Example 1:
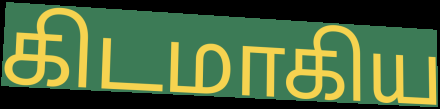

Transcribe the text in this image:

கிடமாகிய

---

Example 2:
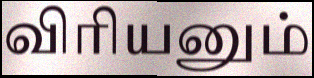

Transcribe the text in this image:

விரியனும்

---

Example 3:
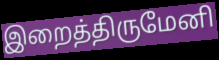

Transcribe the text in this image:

இறைத்திருமேனி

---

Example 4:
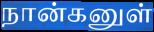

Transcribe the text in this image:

நான்கனுள்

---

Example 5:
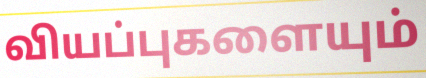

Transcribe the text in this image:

வியப்புகளையும்